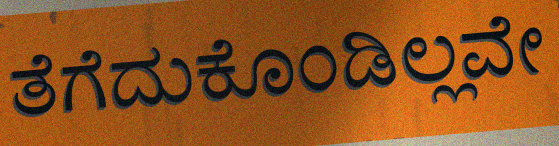
ತೆಗೆದುಕೊಂಡಿಲ್ಲವೇ